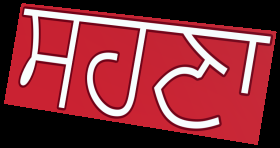
ਸਹਣਾ